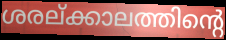
ശരല്ക്കാലത്തിന്റെ